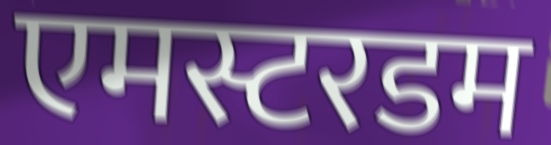
एमस्टरडम